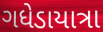
ગધેડાયાત્રા